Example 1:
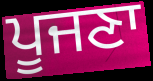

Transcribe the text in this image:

ਪੂਜਣਾ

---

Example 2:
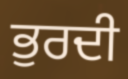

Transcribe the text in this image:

ਭੁਰਦੀ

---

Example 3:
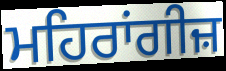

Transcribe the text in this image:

ਮਹਿਰਾਂਗੀਜ਼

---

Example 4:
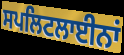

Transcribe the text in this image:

ਸਪਲਿਟਲਾਈਨਾਂ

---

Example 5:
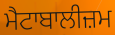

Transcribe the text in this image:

ਮੈਟਾਬਾਲੀਜ਼ਮ